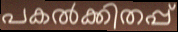
പകൽക്കിതപ്പ്